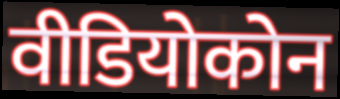
वीडियोकोन